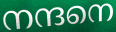
നന്ദനെ